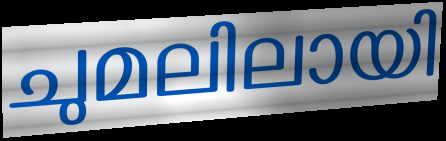
ചുമലിലായി